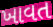
ખાવત